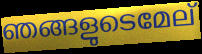
ഞങ്ങളുടെമേല്